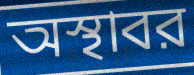
অস্থাবর